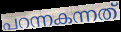
പറന്നകന്നത്